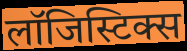
लॉजिस्टिक्‍स